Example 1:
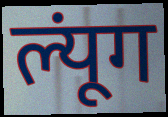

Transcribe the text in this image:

ल्यूंग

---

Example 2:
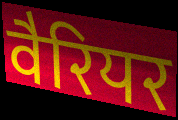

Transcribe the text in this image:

वैरियर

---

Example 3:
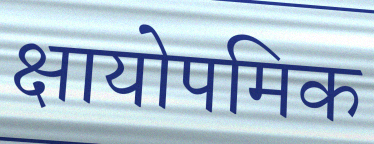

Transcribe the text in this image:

क्षायोपमिक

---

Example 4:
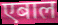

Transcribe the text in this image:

एबाल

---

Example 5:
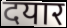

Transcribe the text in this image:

दयार